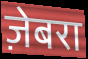
ज़ेबरा